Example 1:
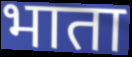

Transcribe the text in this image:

भाता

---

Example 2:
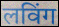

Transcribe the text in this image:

लविंग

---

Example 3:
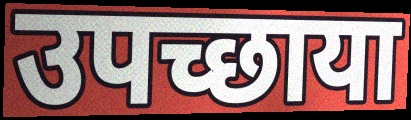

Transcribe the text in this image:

उपच्छाया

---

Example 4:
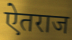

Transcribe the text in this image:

ऐतराज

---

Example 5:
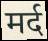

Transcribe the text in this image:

मर्द